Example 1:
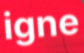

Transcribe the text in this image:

igne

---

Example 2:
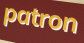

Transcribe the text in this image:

patron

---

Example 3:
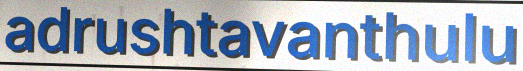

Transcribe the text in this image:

adrushtavanthulu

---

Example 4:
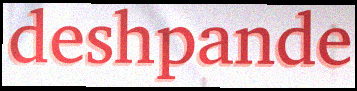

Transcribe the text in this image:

deshpande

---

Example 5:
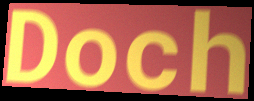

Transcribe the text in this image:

Doch